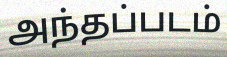
அந்தப்படம்